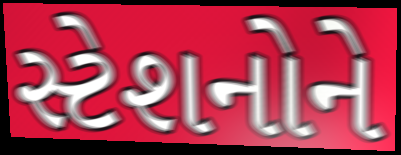
સ્ટેશનોને